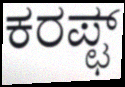
ಕರಪ್ಟ್